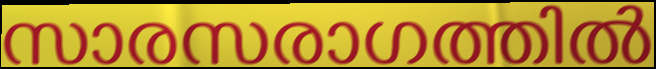
സാരസരാഗത്തിൽ